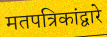
मतपत्रिकांद्वारे